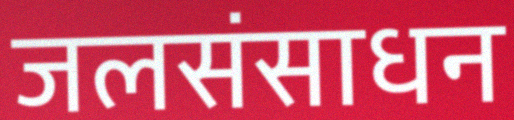
जलसंसाधन